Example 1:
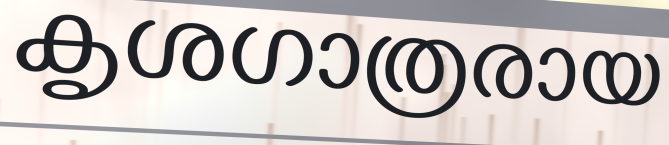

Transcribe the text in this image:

കൃശഗാത്രരായ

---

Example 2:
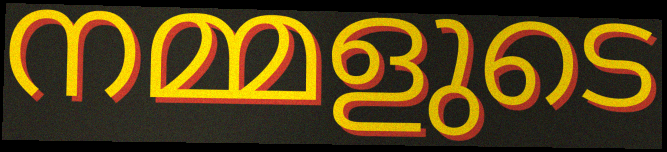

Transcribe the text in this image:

നമ്മളുടെ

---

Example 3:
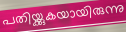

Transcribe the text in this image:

പതിയ്ക്കുകയായിരുന്നു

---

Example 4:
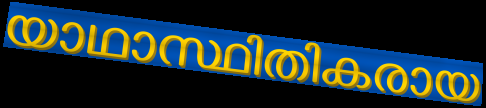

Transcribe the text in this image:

യാഥാസ്ഥിതികരായ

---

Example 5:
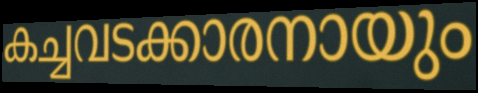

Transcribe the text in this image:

കച്ചവടക്കാരനായും